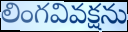
లింగవివక్షను